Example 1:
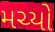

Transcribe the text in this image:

મચ્યો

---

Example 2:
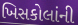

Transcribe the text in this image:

ખિસકોલાંની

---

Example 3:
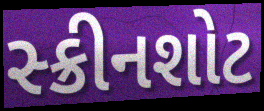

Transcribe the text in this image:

સ્ક્રીનશોટ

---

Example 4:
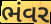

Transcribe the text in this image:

ભંવર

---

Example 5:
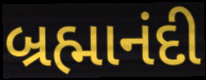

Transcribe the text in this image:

બ્રહ્માનંદી